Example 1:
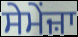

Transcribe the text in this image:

ਸੇਮੇਂਜ਼ਾ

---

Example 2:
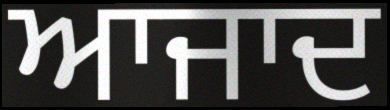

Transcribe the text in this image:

ਆਜਾਦ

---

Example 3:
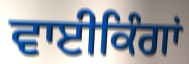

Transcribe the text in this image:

ਵਾਈਕਿੰਗਾਂ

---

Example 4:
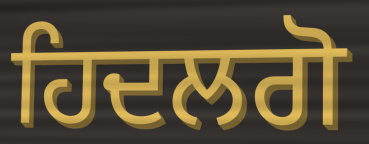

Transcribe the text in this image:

ਹਿਦਲਗੋ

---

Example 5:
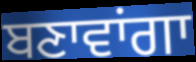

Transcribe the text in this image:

ਬਣਾਵਾਂਗਾ